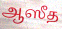
ஆஸீத